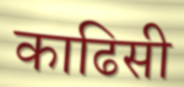
काढिसी